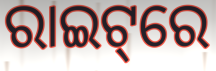
ରାଇଟ୍‌ରେ